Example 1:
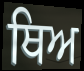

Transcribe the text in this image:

ਥਿਅ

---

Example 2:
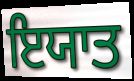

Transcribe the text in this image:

ਇਯਾਤ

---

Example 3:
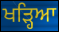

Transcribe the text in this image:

ਖੜ੍ਹਿਆ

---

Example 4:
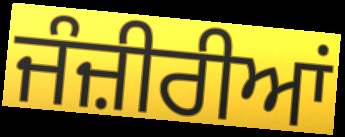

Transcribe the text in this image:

ਜੰਜ਼ੀਰੀਆਂ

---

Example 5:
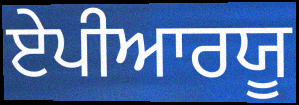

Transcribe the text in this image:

ਏਪੀਆਰਯੂ